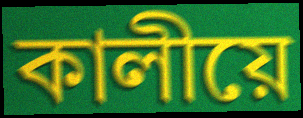
কালীয়ে